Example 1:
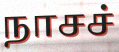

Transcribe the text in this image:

நாசச்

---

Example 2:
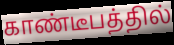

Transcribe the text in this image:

காண்டீபத்தில்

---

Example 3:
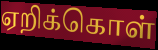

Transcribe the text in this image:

ஏறிக்கொள்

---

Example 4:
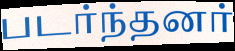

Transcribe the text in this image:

படர்ந்தனர்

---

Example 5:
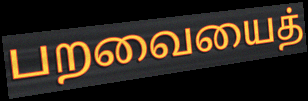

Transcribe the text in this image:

பறவையைத்